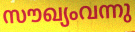
സൗഖ്യംവന്നു